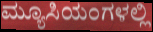
ಮ್ಯೂಸಿಯಂಗಳಲ್ಲಿ